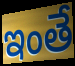
ఇంతే